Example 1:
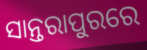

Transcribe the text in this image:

ସାନ୍ତରାପୁରରେ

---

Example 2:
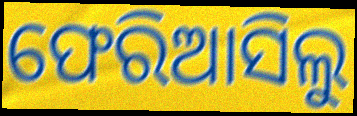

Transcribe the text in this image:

ଫେରିଆସିଲୁ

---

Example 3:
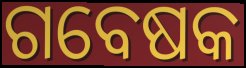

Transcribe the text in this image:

ଗବେଷକ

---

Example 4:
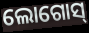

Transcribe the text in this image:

ଲୋଗୋସ୍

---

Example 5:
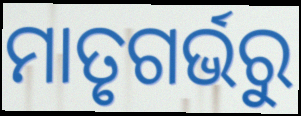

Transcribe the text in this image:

ମାତୃଗର୍ଭରୁ